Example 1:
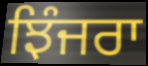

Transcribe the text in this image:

ਝਿੰਜਰਾ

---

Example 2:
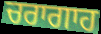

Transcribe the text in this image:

ਚਰਾਗਾਹ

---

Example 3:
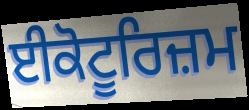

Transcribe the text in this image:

ਈਕੋਟੂਰਿਜ਼ਮ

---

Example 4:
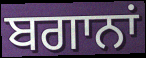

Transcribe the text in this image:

ਬਗਾਨਾਂ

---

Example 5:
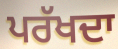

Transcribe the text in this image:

ਪਰੱਖਦਾ